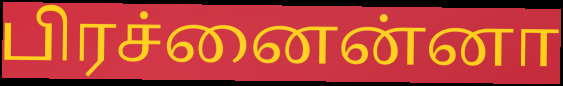
பிரச்னைன்னா